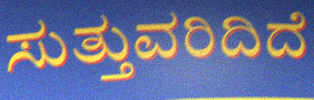
ಸುತ್ತುವರಿದಿದೆ